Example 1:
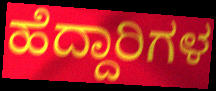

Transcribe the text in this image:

ಹೆದ್ದಾರಿಗಳ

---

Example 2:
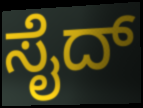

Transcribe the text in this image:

ಸೈದ್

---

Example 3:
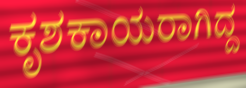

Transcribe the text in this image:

ಕೃಶಕಾಯರಾಗಿದ್ದ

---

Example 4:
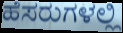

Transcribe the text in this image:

ಹೆಸರುಗಳಲ್ಲಿ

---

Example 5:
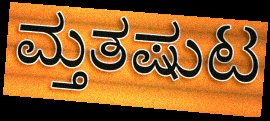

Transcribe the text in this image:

ಮ್ತತಷುಟ